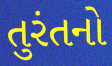
તુરંતનો